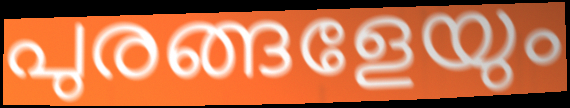
പുരങ്ങളേയും